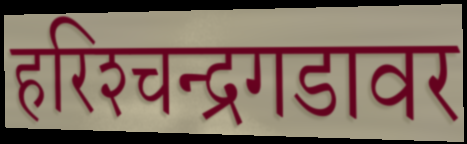
हरिश्चन्द्रगडावर